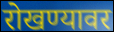
रोखण्यावर